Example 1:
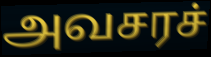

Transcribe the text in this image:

அவசரச்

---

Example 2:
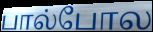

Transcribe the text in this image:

பால்போல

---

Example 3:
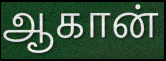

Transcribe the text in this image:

ஆகான்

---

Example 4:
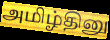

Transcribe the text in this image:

அமிழ்தினு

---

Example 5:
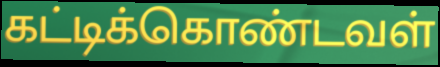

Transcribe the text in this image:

கட்டிக்கொண்டவள்